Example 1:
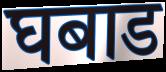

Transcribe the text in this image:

घबाड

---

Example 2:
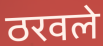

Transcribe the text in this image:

ठरवले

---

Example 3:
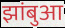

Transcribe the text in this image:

झांबुआ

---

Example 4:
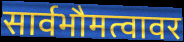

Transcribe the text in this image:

सार्वभौमत्वावर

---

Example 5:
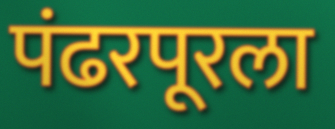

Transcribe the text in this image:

पंढरपूरला